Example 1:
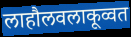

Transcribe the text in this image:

लाहौलवलाकूव्वत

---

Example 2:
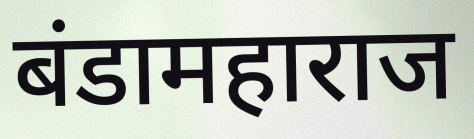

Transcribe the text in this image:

बंडामहाराज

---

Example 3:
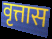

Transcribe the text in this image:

वृत्तास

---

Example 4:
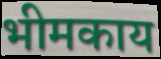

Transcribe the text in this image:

भीमकाय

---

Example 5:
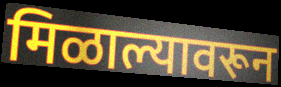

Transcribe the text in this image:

मिळाल्यावरून